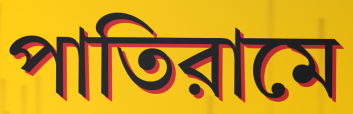
পাতিরামে